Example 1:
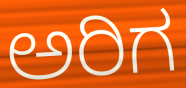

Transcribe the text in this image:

ಅರಿಗ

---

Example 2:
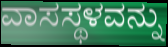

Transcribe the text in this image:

ವಾಸಸ್ಥಳವನ್ನು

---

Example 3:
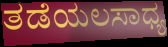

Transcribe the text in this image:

ತಡೆಯಲಸಾಧ್ಯ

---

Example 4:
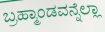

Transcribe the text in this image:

ಬ್ರಹ್ಮಾಂಡವನ್ನೆಲ್ಲಾ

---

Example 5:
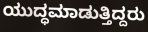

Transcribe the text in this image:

ಯುದ್ಧಮಾಡುತ್ತಿದ್ದರು